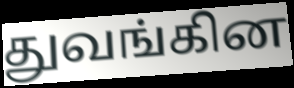
துவங்கின